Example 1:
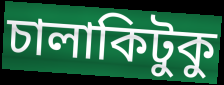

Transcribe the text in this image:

চালাকিটুকু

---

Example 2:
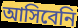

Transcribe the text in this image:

আসিবেনি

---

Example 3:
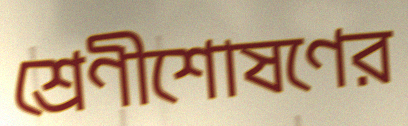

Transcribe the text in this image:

শ্রেণীশোষণের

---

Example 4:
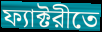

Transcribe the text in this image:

ফ্যাক্টরীতে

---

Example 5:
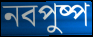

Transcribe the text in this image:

নবপুষ্প